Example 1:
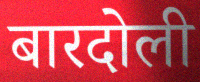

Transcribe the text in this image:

बारदोली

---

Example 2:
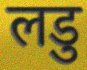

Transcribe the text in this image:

लडु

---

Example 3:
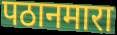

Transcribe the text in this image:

पठानमारा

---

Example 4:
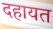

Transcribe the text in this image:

दहायत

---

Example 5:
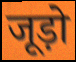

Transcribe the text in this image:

जूड़ो